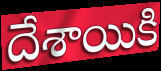
దేశాయికి